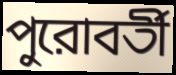
পুরোবর্তী